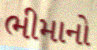
ભીમાનો